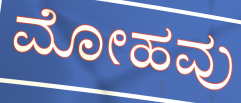
ಮೋಹವು